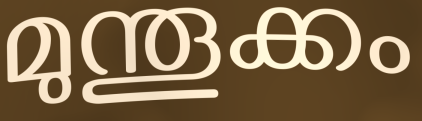
മുന്തൂക്കം